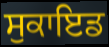
ਸੁਕਾਇਡ